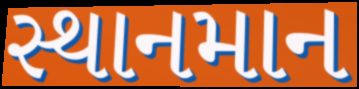
સ્થાનમાન